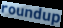
roundup